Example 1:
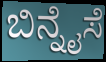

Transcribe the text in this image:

ಬಿನ್ನೈಸೆ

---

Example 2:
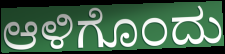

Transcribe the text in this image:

ಆಳಿಗೊಂದು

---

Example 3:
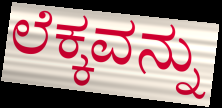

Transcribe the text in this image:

ಲೆಕ್ಕವನ್ನು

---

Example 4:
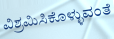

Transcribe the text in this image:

ವಿಶ್ರಮಿಸಿಕೊಳ್ಳುವಂತೆ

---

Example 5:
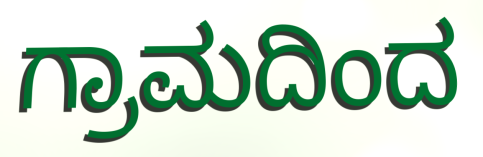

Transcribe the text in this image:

ಗ್ರಾಮದಿಂದ